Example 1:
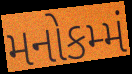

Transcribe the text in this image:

મનોકમ્મં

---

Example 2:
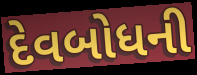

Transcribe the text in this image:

દેવબોધની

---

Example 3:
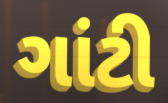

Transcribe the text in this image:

ગાંટી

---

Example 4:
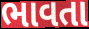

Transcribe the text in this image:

ભાવતા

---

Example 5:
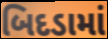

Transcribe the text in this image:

બિદડામાં